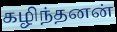
கழிந்தனன்